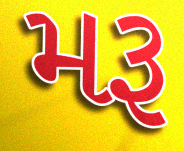
મરૂ